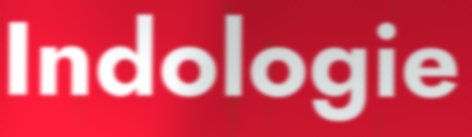
Indologie